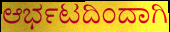
ಆರ್ಭಟದಿಂದಾಗಿ